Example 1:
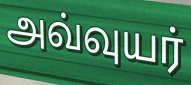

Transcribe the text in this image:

அவ்வுயர்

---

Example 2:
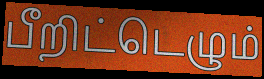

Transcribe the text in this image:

பீறிட்டெழும்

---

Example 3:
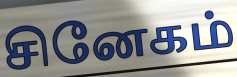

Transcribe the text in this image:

சினேகம்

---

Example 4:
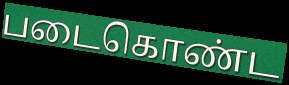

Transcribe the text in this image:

படைகொண்ட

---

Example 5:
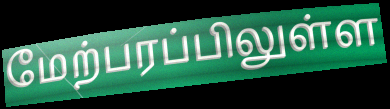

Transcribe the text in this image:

மேற்பரப்பிலுள்ள